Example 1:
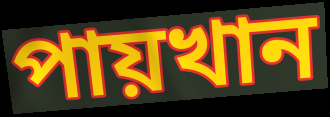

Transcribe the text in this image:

পায়খান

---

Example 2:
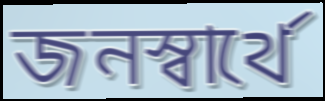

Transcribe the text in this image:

জনস্বার্থে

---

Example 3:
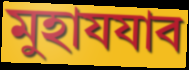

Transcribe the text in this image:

মুহাযযাব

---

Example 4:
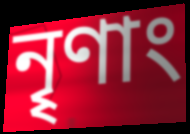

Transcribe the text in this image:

নৄণাং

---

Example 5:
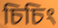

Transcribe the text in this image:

চিচিং